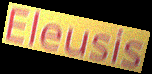
Eleusis